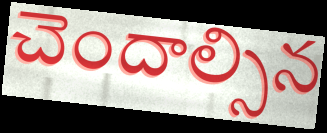
చెందాల్సిన